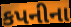
કપનીના